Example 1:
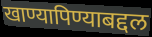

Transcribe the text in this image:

खाण्यापिण्याबद्दल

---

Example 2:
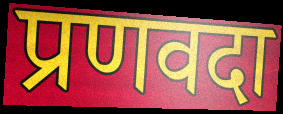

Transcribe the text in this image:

प्रणवदा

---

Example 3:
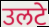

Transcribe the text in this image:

उलटे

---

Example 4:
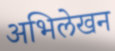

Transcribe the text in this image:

अभिलेखन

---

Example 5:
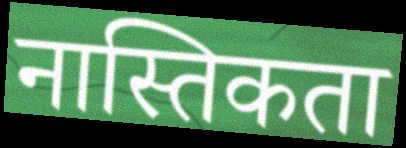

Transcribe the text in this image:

नास्तिकता